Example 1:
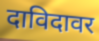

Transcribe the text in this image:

दाविदावर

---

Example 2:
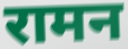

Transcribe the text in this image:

रामन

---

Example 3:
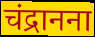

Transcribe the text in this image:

चंद्रानना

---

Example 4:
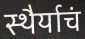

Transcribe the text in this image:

स्थैर्याचं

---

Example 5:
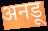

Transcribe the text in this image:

अनडू